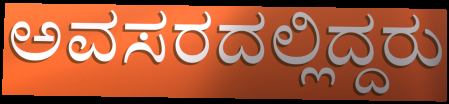
ಅವಸರದಲ್ಲಿದ್ದರು